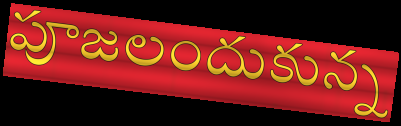
పూజలందుకున్న